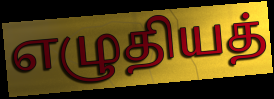
எழுதியத்